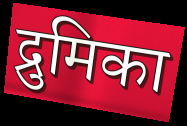
द्रुमिका